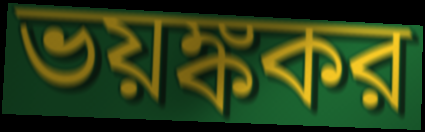
ভয়ঙ্ককর